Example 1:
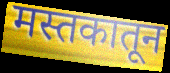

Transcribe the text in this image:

मस्तकातून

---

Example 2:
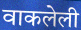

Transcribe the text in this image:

वाकलेली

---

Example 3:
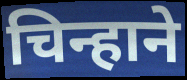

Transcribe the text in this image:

चिन्हाने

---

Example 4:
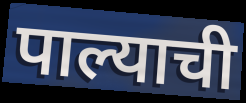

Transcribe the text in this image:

पाल्याची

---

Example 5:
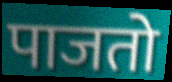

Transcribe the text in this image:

पाजतो